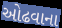
ઓઢવાના